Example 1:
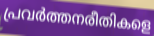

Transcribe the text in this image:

പ്രവർത്തനരീതികളെ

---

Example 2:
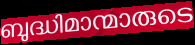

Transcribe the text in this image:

ബുദ്ധിമാന്മാരുടെ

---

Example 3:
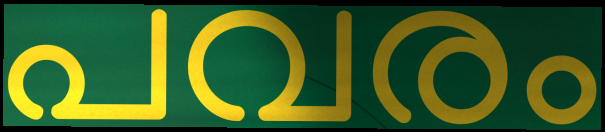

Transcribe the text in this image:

പവരം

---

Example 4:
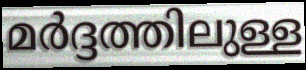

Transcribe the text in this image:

മർദ്ദത്തിലുള്ള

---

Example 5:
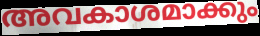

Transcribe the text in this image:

അവകാശമാക്കും